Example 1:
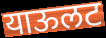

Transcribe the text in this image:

याऊलट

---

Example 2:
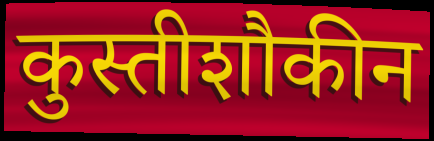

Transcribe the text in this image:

कुस्तीशौकीन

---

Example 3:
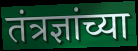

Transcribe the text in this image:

तंत्रज्ञांच्या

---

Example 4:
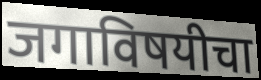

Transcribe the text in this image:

जगाविषयीचा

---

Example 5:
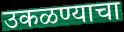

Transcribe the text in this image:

उकळण्याचा